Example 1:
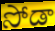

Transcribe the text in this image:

సోడా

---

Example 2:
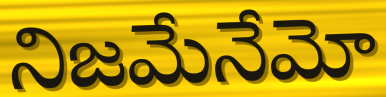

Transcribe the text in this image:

నిజమేనేమో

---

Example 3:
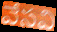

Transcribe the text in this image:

వేసవి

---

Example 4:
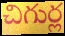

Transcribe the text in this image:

చిగుర్ల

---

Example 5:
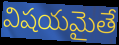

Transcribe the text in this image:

విషయమైతే